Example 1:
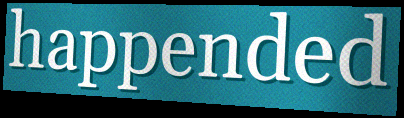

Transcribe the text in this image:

happended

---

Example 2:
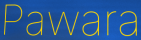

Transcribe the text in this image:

Pawara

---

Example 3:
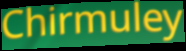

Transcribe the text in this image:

Chirmuley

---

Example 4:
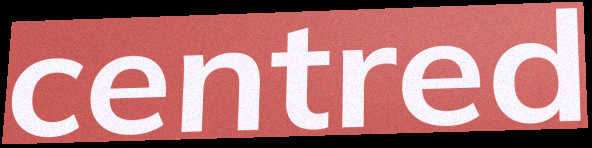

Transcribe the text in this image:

centred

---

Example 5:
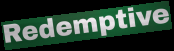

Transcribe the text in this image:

Redemptive